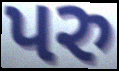
પરુ